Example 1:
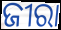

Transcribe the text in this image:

ଜୀରା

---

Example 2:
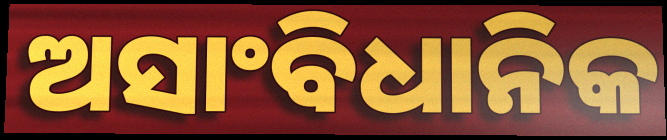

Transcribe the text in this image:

ଅସାଂବିଧାନିକ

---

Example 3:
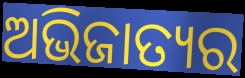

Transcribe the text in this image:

ଅଭିଜାତ୍ୟର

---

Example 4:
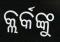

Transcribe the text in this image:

କ୍ଲର୍କଙ୍କୁ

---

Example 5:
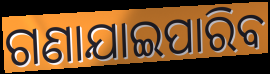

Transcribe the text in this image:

ଗଣାଯାଇପାରିବ